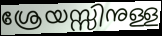
ശ്രേയസ്സിനുള്ള